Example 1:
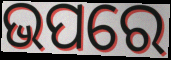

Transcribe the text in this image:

ଭପରେ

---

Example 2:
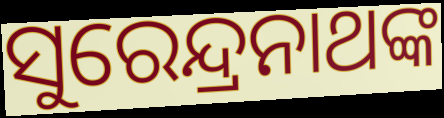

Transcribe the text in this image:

ସୁରେନ୍ଦ୍ରନାଥଙ୍କ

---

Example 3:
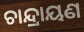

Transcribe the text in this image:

ଚାନ୍ଦ୍ରାୟଣ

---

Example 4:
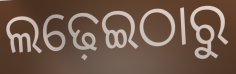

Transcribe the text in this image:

ଲଢ଼େଇଠାରୁ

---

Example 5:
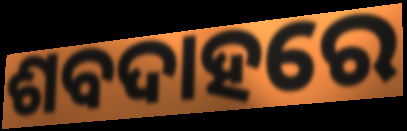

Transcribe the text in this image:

ଶବଦାହରେ